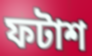
ফটাশ